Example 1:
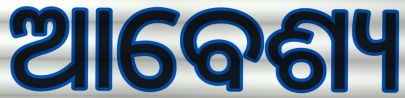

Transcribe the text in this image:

ଆବେଶ୍ୟ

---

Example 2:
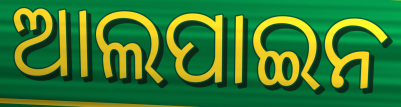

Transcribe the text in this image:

ଆଲପାଇନ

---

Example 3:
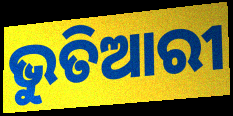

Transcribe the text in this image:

ଭୁତିଆରୀ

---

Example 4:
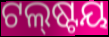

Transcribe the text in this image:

ଟଲ୍‌ଷ୍ଟୟ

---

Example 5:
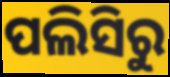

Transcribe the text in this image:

ପଲିସିରୁ